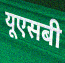
यूएसबी